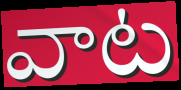
వాట